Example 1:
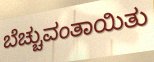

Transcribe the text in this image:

ಬೆಚ್ಚುವಂತಾಯಿತು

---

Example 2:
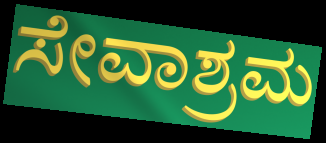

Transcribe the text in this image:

ಸೇವಾಶ್ರಮ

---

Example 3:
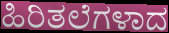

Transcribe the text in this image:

ಹಿರಿತಲೆಗಳಾದ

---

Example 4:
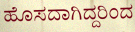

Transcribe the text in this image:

ಹೊಸದಾಗಿದ್ದರಿಂದ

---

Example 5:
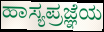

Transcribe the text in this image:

ಹಾಸ್ಯಪ್ರಜ್ಞೆಯ